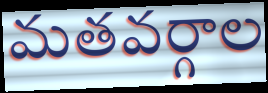
మతవర్గాల